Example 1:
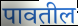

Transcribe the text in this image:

पावतील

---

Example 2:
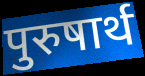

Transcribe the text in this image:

पुरुषार्थ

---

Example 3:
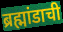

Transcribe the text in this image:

ब्रह्मांडाची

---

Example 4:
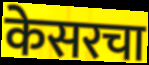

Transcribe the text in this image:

केसरचा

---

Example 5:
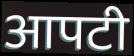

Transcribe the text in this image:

आपटी